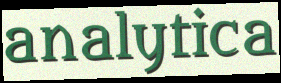
analytica